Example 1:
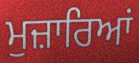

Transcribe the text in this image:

ਮੁਜ਼ਾਰਿਆਂ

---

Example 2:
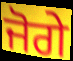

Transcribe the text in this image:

ਜੋਗੇ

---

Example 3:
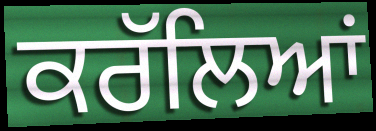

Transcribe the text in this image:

ਕਰੱਲਿਆਂ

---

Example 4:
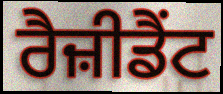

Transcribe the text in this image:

ਰੈਜ਼ੀਡੈਂਟ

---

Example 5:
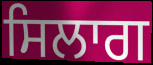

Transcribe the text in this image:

ਸਿਲਾਗ